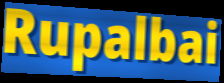
Rupalbai